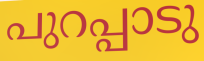
പുറപ്പാടു